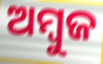
ଅମ୍ବୁଜ